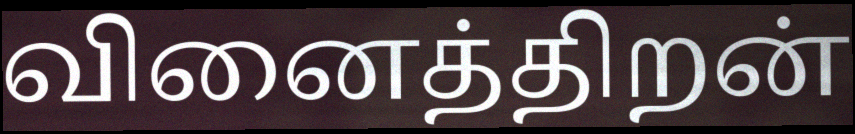
வினைத்திறன்